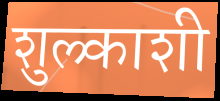
शुल्काशी